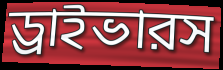
ড্রাইভারস